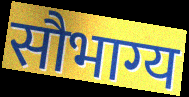
सौभाग्य